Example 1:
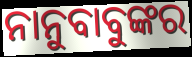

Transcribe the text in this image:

ନାନୁବାବୁଙ୍କର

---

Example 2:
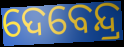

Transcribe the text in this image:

ଦେବେନ୍ଦ୍ର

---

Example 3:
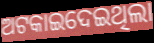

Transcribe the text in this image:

ଅଟକାଇଦେଇଥିଲା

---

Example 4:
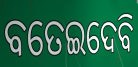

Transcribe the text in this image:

ବତେଇଦେବି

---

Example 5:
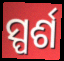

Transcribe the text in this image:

ସ୍ପର୍ଶ